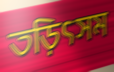
তড়িৎসম